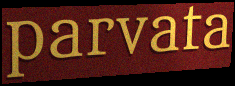
parvata